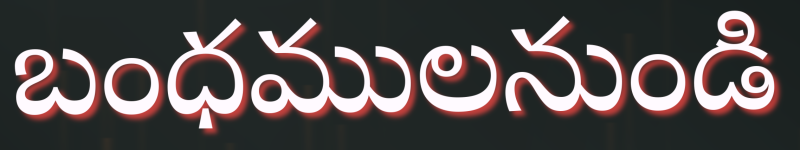
బంధములనుండి